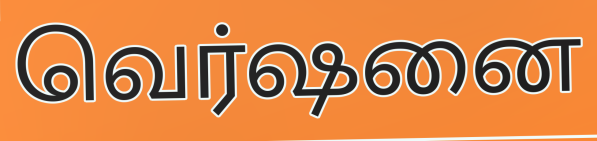
வெர்ஷனை